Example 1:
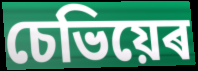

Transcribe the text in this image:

চেভিয়েৰ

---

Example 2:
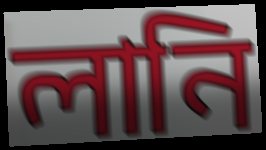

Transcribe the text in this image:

লানি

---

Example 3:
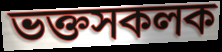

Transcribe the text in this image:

ভক্তসকলক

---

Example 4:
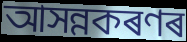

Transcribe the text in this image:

আসন্নকৰণৰ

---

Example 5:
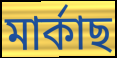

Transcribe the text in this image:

মাৰ্কাছ